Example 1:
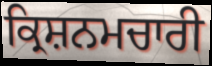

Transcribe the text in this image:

ਕ੍ਰਿਸ਼ਨਮਚਾਰੀ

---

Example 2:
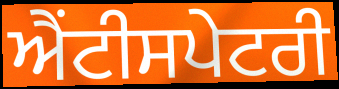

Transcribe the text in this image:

ਐਂਟੀਸਪੇਟਰੀ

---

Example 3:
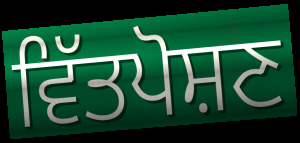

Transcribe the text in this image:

ਵਿੱਤਪੋਸ਼ਣ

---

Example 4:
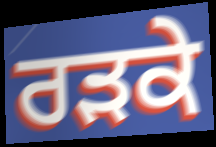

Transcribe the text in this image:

ਰੜਕੇ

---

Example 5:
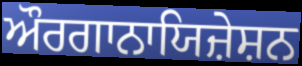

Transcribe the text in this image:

ਔਰਗਾਨਾਯਿਜ਼ੇਸ਼ਨ